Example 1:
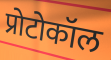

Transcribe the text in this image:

प्रोटोकॉल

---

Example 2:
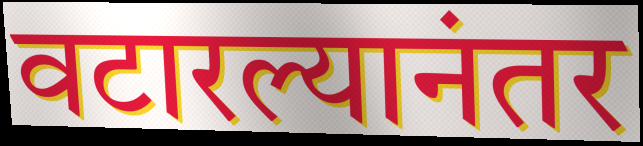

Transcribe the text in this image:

वटारल्यानंतर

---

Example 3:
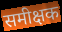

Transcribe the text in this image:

समीक्षक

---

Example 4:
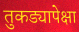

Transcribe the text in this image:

तुकड्यापेक्षा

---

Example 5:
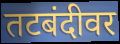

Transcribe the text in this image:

तटबंदीवर